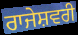
ਰਾਜੇਸ਼ਵਰੀ